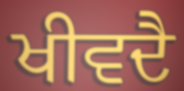
ਖੀਵਦੈ